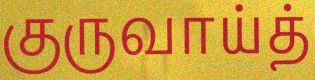
குருவாய்த்